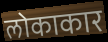
लोकाकार